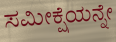
ಸಮೀಕ್ಷೆಯನ್ನೇ